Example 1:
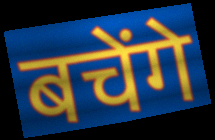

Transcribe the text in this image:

बचेंगे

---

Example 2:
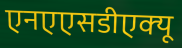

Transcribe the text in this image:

एनएएसडीएक्यू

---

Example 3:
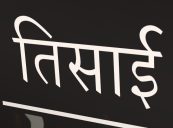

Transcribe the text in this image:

तिसाई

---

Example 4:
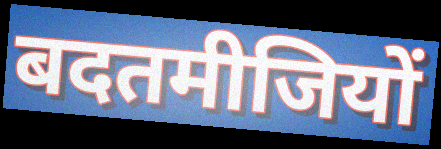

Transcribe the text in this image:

बदतमीजियों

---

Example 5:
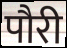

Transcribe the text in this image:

पौरी